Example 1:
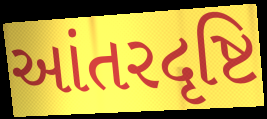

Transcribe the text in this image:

આંતરદૃષ્ટિ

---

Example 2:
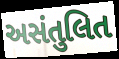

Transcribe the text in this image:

અસંતુલિત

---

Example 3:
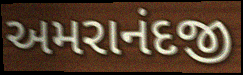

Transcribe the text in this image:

અમરાનંદજી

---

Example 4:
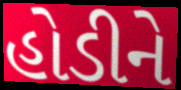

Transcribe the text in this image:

હોડીને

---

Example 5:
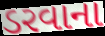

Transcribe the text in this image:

ડરવાના